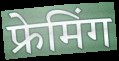
फ्रेमिंग